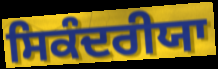
ਸਿਕੰਦਰੀਯਾ